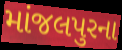
માંજલપુરના